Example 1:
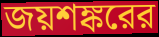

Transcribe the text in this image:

জয়শঙ্করের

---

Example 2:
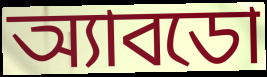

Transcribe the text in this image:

অ্যাবডো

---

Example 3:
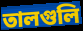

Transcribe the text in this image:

তালগুলি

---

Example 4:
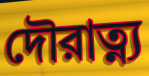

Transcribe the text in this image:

দৌরাত্ন্য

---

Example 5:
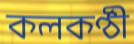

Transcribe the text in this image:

কলকণ্ঠী